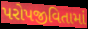
પરોપજીવિતામાં